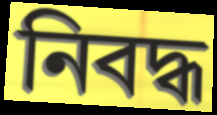
নিবদ্ধ